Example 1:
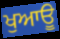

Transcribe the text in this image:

ਖੁਆਊ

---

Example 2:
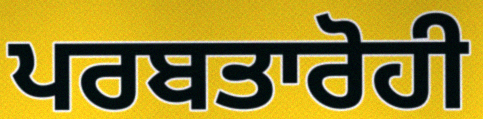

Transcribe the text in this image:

ਪਰਬਤਾਰੋਹੀ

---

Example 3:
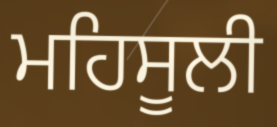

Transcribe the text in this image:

ਮਹਿਸੂਲੀ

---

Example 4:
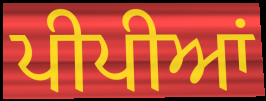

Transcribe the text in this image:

ਪੀਪੀਆਂ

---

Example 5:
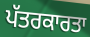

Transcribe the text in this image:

ਪੱਤਰਕਾਰਤਾ